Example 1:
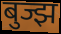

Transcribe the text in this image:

बुज्झ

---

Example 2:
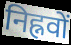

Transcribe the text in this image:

निह्नवों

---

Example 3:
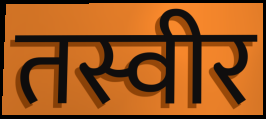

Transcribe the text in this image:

तस्‍वीर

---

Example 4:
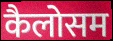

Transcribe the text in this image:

कैलोसम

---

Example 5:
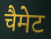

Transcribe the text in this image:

चैमेट